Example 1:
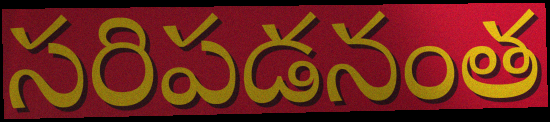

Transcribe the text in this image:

సరిపడనంత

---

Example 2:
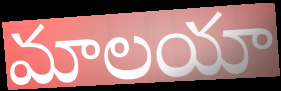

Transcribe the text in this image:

మాలయా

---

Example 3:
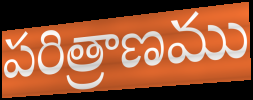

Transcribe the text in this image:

పరిత్రాణము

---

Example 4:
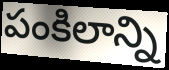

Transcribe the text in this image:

పంకిలాన్ని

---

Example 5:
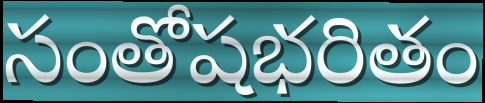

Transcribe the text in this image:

సంతోషభరితం